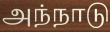
அந்நாடு